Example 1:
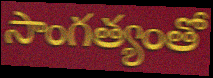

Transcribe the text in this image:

సాంగత్యంతో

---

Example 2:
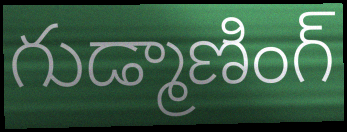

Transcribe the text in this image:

గుడ్మాణింగ్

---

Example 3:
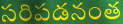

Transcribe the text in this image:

సరిపడనంత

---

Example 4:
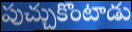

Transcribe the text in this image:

పుచ్చుకొంటాడు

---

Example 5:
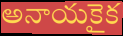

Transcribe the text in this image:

అనాయకైక